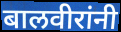
बालवीरांनी